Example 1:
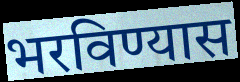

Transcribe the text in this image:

भरविण्यास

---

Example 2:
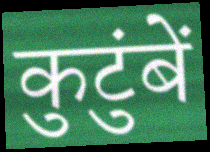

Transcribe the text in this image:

कुटुंबें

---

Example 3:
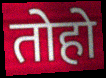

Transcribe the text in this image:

तोहो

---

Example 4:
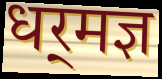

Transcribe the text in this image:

धर्मज्ञ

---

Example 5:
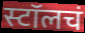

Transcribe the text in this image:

स्टॉलचं